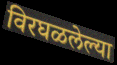
विरघळलेल्या